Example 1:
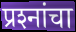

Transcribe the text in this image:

प्रश्‍नांचा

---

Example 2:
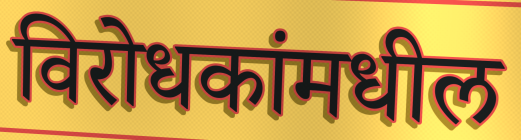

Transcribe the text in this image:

विरोधकांमधील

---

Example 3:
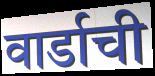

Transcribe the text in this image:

वार्डाची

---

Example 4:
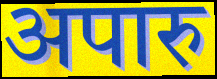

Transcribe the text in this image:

अपारु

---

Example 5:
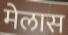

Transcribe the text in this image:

मेलास